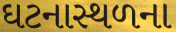
ઘટનાસ્થળના